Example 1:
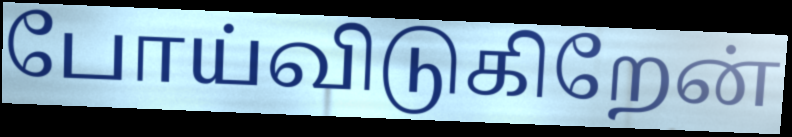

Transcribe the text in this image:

போய்விடுகிறேன்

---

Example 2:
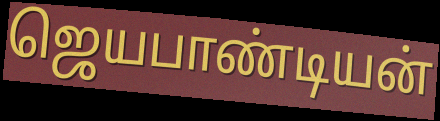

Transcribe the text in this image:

ஜெயபாண்டியன்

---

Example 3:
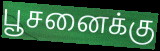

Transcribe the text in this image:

பூசனைக்கு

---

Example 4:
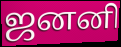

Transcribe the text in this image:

ஜனனி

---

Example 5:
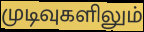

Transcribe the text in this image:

முடிவுகளிலும்